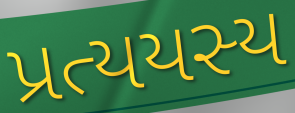
પ્રત્યયસ્ય